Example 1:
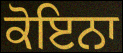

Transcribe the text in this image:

ਕੋਇਨਾ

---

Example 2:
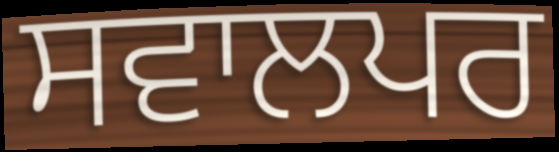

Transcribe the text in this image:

ਸਵਾਲਪਰ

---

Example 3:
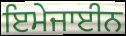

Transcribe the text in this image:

ਇਮੇਜਾਈਨ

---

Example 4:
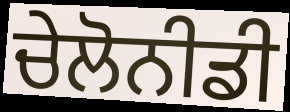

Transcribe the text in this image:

ਚੇਲੋਨੀਡੀ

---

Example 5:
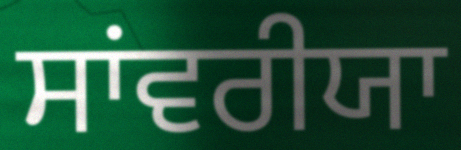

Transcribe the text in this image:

ਸਾਂਵਰੀਯਾ